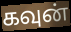
கவுன்